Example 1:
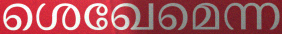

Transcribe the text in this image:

ശെഖേമെന്ന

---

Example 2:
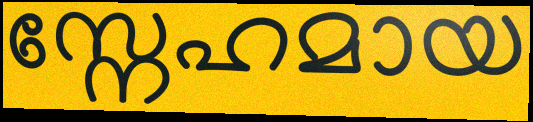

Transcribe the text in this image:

സ്നേഹമായ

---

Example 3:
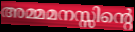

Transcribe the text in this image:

അമ്മമനസ്സിന്റെ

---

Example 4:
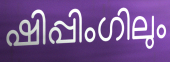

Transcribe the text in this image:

ഷിപ്പിംഗിലും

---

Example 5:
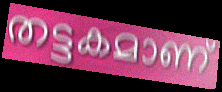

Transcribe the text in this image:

തട്ടകമാണ്